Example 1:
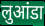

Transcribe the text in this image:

लुआंडा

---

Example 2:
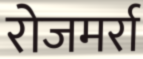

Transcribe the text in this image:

रोजमर्रा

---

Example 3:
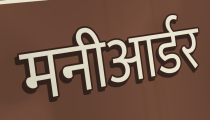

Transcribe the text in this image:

मनीआर्डर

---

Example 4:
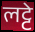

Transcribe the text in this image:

लट्टे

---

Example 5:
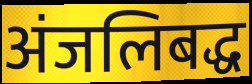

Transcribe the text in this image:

अंजलिबद्ध